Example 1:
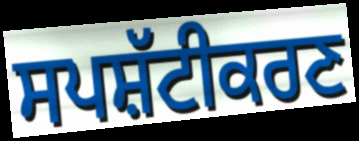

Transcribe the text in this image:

ਸਪਸ਼ੱਟੀਕਰਣ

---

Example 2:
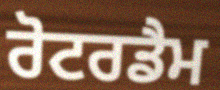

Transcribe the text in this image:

ਰੋਟਰਡੈਮ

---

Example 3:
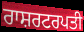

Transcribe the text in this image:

ਰਾਸ਼ਰਟਰਪਤੀ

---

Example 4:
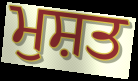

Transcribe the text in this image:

ਮੁਸ਼ਤ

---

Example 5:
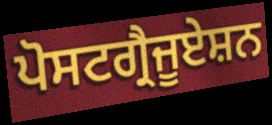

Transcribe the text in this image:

ਪੋਸਟਗ੍ਰੈਜੂਏਸ਼ਨ